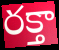
రక్తా